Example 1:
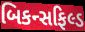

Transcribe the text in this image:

બિકન્સફિલ્ડ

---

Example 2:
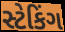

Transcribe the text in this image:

સ્ટેકિંગ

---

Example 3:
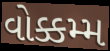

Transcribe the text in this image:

વોક્કમ્મ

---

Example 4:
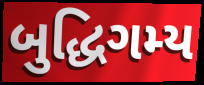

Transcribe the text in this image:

બુદ્ધિગમ્ય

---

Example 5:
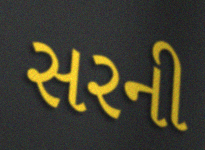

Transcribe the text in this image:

સરની